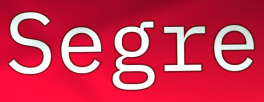
Segre